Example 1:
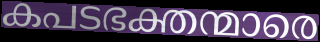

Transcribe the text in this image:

കപടഭക്തന്മാരെ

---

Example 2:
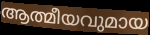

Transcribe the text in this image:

ആത്മീയവുമായ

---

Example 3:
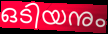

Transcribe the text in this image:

ഒടിയനും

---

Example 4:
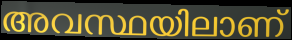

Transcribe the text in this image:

അവസ്ഥയിലാണ്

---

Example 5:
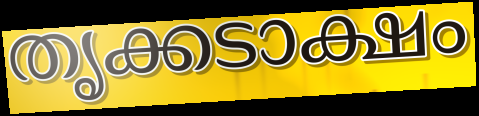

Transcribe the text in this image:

തൃക്കടാക്ഷം